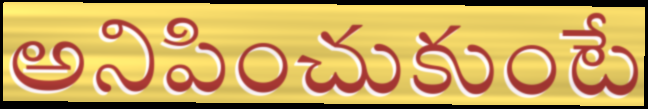
అనిపించుకుంటే